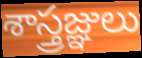
శాస్త్రజ్ఞులు